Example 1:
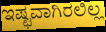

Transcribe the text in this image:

ಇಷ್ಟವಾಗಿರಲಿಲ್ಲ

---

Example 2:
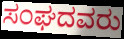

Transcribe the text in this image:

ಸಂಘದವರು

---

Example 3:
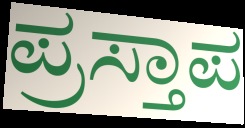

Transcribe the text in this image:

ಪ್ರಸ್ತಾಪ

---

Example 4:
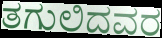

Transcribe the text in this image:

ತಗುಲಿದವರ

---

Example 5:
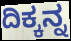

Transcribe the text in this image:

ದಿಕ್ಕನ್ನ